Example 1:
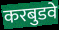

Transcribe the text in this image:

करबुडवे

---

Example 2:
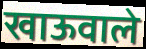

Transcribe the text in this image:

खाऊवाले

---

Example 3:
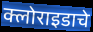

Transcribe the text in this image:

क्लोराइडाचे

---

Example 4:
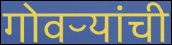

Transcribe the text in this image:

गोवऱ्यांची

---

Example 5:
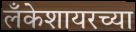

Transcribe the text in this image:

लँकेशायरच्या